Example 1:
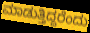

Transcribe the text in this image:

ಮಾಡುತ್ತಿದ್ದರೆಂದು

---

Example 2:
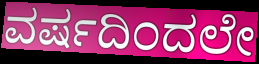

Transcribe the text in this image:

ವರ್ಷದಿಂದಲೇ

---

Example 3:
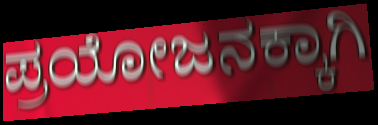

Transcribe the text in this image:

ಪ್ರಯೋಜನಕ್ಕಾಗಿ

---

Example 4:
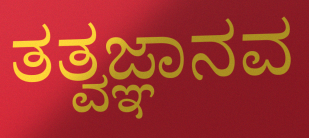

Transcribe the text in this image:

ತತ್ವಜ್ಞಾನವ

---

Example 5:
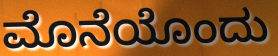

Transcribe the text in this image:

ಮೊನೆಯೊಂದು